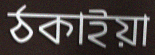
ঠকাইয়া